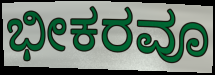
ಭೀಕರವೂ